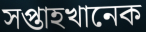
সপ্তাহখানেক